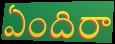
ఏందిరా